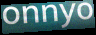
onnyo